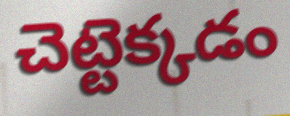
చెట్టెక్కడం